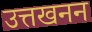
उत्तखनन